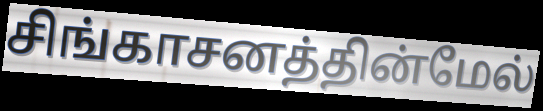
சிங்காசனத்தின்மேல்